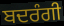
ਬਦਰੰਗੀ